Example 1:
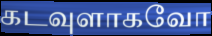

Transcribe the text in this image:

கடவுளாகவோ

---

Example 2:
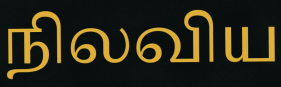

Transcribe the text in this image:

நிலவிய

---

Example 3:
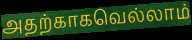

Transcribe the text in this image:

அதற்காகவெல்லாம்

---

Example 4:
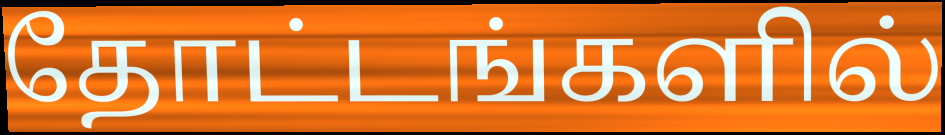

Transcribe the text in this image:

தோட்டங்களில்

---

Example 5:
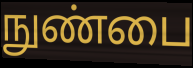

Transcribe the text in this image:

நுண்பை